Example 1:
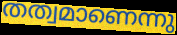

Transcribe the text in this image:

തത്വമാണെന്നു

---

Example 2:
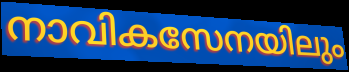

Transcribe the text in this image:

നാവികസേനയിലും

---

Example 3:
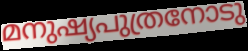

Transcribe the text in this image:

മനുഷ്യപുത്രനോടു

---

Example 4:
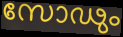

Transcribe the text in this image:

സോഢും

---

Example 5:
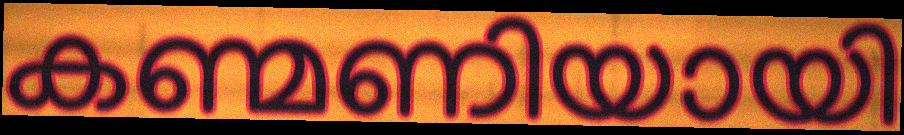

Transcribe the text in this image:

കണ്മണിയായി